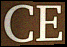
CE